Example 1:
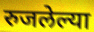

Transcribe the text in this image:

रुजलेल्या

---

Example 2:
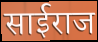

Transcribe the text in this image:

साईराज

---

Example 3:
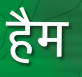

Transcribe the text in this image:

हैम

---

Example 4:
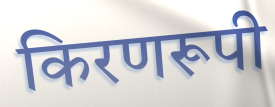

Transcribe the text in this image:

किरणरूपी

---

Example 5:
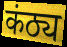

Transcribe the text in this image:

कंठ्य